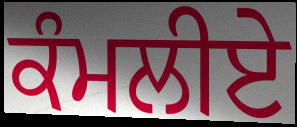
ਕੰਮਲੀਏ